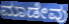
ಮಾಡೇವು